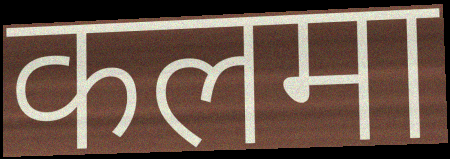
कलमा